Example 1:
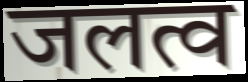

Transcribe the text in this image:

जलत्व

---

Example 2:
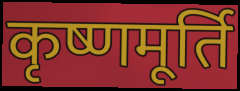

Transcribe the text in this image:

कृष्णमूर्ति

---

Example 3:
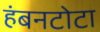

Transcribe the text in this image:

हंबनटोटा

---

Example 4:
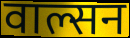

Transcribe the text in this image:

वाल्सन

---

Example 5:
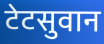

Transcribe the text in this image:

टेटसुवान